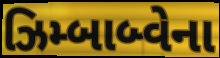
ઝિમ્બાબ્વેના